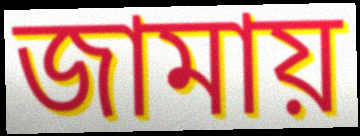
জামায়